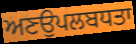
ਅਣਉਪਲਬਧਤਾ